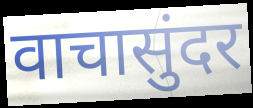
वाचासुंदर